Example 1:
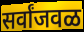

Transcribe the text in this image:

सर्वांजवळ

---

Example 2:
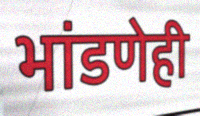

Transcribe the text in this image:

भांडणेही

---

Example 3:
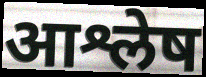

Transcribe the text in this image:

आश्लेष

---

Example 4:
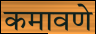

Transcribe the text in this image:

कमावणे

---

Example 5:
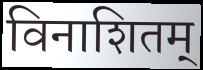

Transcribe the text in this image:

विनाशितम्